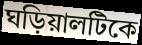
ঘড়িয়ালটিকে